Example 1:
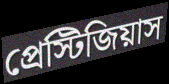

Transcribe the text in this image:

প্রেস্টিজিয়াস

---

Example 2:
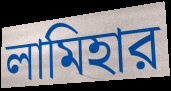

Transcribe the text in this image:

লামিহার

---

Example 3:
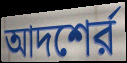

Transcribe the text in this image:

আদশের্র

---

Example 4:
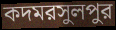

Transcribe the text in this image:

কদমরসুলপুর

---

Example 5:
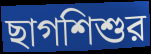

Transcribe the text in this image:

ছাগশিশুর